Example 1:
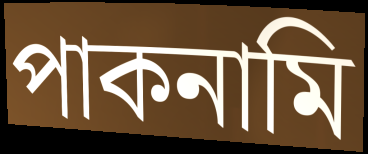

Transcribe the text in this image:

পাকনামি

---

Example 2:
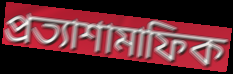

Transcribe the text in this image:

প্রত্যাশামাফিক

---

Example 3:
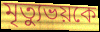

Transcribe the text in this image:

মৃত্যুভয়কে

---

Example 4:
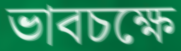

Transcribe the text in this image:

ভাবচক্ষে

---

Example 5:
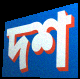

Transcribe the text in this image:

দশ